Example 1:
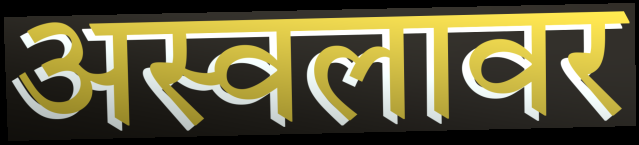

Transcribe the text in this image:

अस्वलावर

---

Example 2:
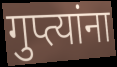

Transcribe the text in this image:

गुप्त्यांना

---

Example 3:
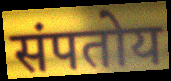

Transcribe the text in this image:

संपतोय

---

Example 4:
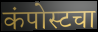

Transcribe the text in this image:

कंपोस्टचा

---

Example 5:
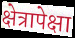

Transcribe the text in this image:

क्षेत्रापेक्षा